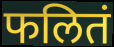
फलितं